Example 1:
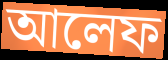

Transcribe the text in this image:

আলেফ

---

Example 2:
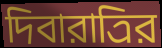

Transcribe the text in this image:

দিবারাত্রির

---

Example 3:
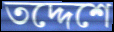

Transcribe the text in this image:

তদ্দেশে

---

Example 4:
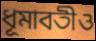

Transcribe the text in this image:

ধূমাবতীও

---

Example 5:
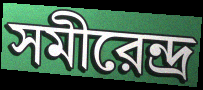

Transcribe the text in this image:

সমীরেন্দ্র